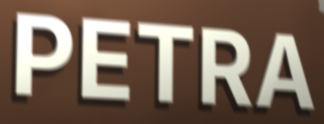
PETRA